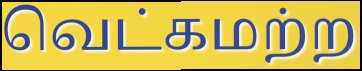
வெட்கமற்ற